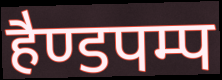
हैण्डपम्प